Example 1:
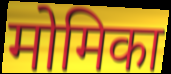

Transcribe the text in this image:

मोमिका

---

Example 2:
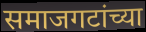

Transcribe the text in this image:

समाजगटांच्या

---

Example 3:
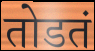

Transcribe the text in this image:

तोडतं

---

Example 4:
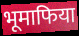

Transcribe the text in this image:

भूमाफिया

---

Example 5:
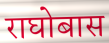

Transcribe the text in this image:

राघोबास